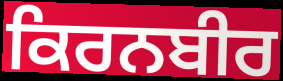
ਕਿਰਨਬੀਰ